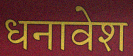
धनावेश